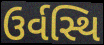
ઉર્વસ્થિ